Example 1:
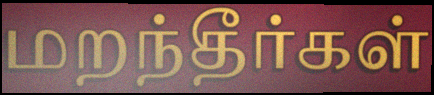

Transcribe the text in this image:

மறந்தீர்கள்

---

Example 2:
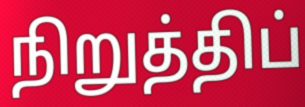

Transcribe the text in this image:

நிறுத்திப்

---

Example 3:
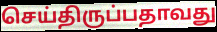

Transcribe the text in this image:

செய்திருப்பதாவது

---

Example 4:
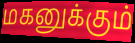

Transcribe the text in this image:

மகனுக்கும்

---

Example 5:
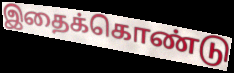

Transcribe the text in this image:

இதைக்கொண்டு